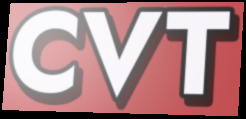
CVT